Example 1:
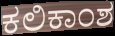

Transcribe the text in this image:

ಕಲಿಕಾಂಶ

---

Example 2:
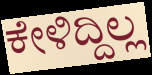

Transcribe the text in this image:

ಕೇಳಿದ್ದಿಲ್ಲ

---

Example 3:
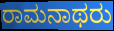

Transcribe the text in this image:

ರಾಮನಾಥರು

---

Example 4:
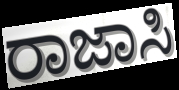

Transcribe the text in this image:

ರಾಜಾಸಿ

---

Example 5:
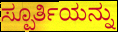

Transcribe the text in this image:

ಸ್ಪೂರ್ತಿಯನ್ನು